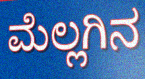
ಮೆಲ್ಲಗಿನ